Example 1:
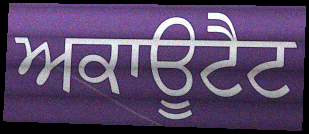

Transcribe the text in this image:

ਅਕਾਊਟੈਟ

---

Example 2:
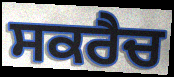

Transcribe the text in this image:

ਸਕਰੈਚ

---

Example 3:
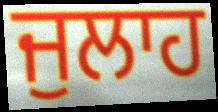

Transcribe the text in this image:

ਜੁਲਾਹ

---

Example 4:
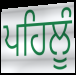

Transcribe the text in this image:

ਪਹਿਲੂੰ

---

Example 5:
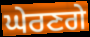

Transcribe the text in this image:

ਘੇਰਣਗੇ